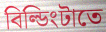
বিল্ডিংটাতে